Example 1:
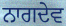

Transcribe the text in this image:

ਨਾਗਦੇਵ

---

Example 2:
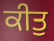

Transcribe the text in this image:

ਕੀਤੁ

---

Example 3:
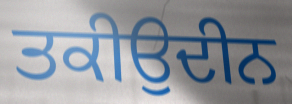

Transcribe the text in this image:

ਤਕੀਉਦੀਨ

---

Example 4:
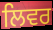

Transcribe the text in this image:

ਲਿਵਰ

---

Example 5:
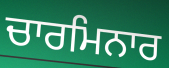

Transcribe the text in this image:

ਚਾਰਮਿਨਾਰ